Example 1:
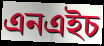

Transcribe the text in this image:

এনএইচ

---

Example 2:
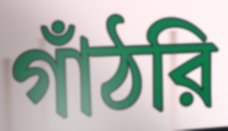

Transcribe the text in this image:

গাঁঠরি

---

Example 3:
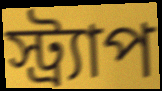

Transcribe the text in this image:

স্ট্র্যাপ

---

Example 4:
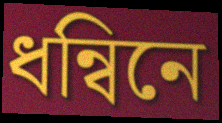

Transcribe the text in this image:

ধন্বিনে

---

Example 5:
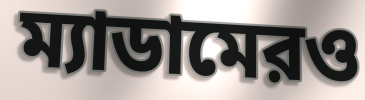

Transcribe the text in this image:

ম্যাডামেরও